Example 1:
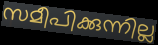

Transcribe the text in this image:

സമീപിക്കുന്നില്ല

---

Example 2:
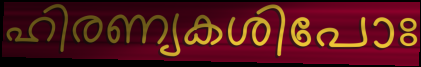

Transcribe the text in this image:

ഹിരണ്യകശിപോഃ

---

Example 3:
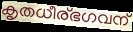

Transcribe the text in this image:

കൃതധീര്ഭഗവന്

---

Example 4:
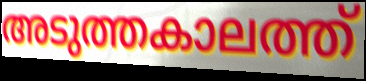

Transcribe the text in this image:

അടുത്തകാലത്ത്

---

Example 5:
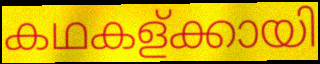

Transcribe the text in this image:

കഥകള്ക്കായി